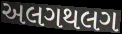
અલગથલગ